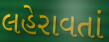
લહેરાવતાં